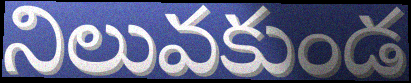
నిలువకుండ